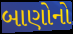
બાણોનો